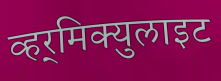
व्हर्मिक्युलाइट